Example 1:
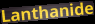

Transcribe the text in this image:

Lanthanide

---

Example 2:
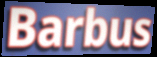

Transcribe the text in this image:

Barbus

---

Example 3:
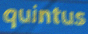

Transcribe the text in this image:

quintus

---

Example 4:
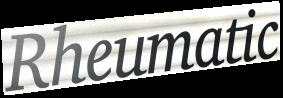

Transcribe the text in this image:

Rheumatic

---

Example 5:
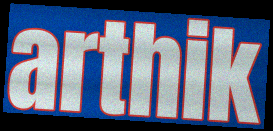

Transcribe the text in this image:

arthik